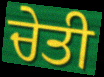
ਚੇਤੀ